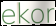
ekor